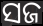
ସଜ